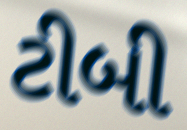
ટીબી